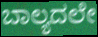
ಬಾಲ್ಯದಲೇ